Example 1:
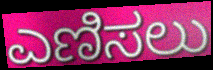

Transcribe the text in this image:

ಎಣಿಸಲು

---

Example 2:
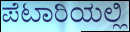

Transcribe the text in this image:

ಪೆಟಾರಿಯಲ್ಲಿ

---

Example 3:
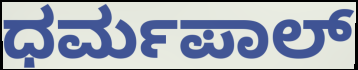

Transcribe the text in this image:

ಧರ್ಮಪಾಲ್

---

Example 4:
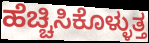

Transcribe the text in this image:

ಹೆಚ್ಚಿಸಿಕೊಳ್ಳುತ್ತ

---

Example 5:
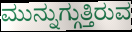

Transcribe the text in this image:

ಮುನ್ನುಗ್ಗುತ್ತಿರುವ